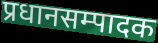
प्रधानसम्पादक